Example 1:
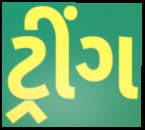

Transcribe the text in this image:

ટ્રીંગ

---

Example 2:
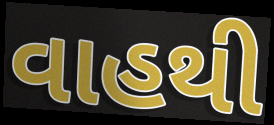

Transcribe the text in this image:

વાહથી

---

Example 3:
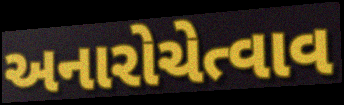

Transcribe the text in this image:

અનારોચેત્વાવ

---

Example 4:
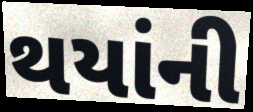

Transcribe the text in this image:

થયાંની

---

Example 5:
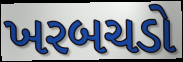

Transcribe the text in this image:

ખરબચડો